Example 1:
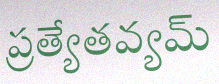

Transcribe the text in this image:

ప్రత్యేతవ్యమ్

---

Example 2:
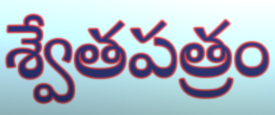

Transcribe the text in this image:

శ్వేతపత్రం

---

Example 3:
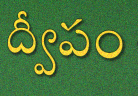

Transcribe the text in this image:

ద్వీపం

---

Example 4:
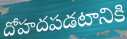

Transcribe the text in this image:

దోహదపడటానికి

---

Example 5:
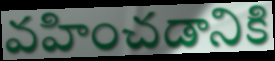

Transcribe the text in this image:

వహించడానికి